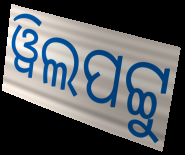
ୱିଲପଟ୍ଟୁ